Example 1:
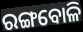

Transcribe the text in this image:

ରଙ୍ଗବୋଳି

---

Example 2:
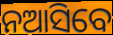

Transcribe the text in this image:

ନଆସିବେ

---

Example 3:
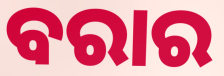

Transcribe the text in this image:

ବରାର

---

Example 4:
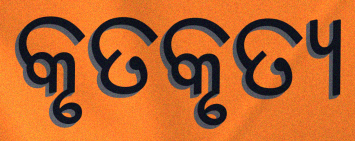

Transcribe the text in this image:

କୃତକୃତ୍ୟ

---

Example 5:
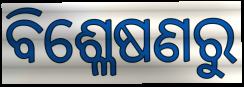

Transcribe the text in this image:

ବିଶ୍ଳେଷଣରୁ